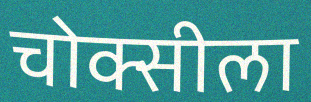
चोक्सीला